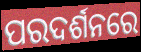
ପରଦର୍ଶନରେ